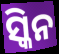
ସ୍କିନ